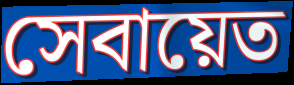
সেবায়েত